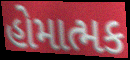
હોમાત્મક